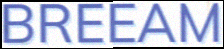
BREEAM